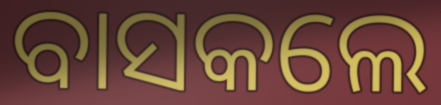
ବାସକଲେ